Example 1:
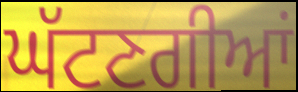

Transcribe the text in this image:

ਘੱਟਣਗੀਆਂ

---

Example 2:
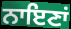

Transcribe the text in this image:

ਨਾਇਣਾਂ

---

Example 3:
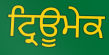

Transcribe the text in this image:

ਟ੍ਰਿਊਮੇਕ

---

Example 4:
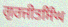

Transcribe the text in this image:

ਗੁਰਜੀਤਸਿੰਘ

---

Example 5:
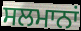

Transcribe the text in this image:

ਸਲਮਾਨਾਂ